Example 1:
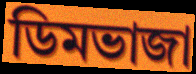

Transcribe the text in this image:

ডিমভাজা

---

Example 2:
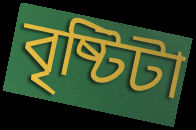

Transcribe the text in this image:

বৃষ্টিটা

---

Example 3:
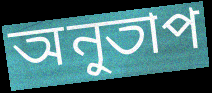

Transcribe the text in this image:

অনুতাপ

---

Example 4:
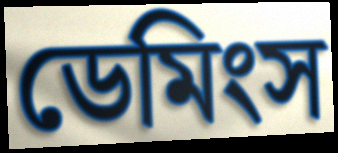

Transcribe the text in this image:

ডেমিংস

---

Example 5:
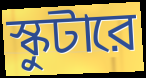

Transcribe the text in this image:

স্কুটারে